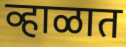
व्हाळात